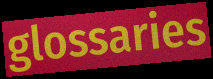
glossaries